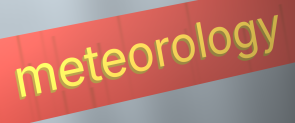
meteorology